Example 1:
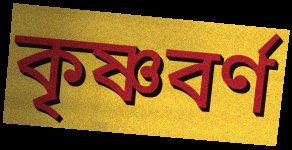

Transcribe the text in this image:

কৃষ্ণবর্ণ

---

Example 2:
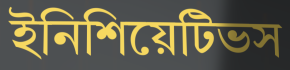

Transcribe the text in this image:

ইনিশিয়েটিভস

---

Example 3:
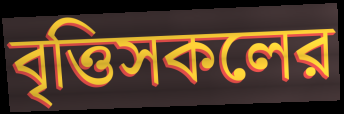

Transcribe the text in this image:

বৃত্তিসকলের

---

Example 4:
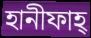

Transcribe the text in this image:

হানীফাহ্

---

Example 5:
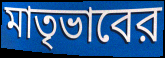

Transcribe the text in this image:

মাতৃভাবের